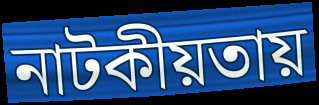
নাটকীয়তায়